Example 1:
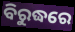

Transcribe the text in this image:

ବିରୁଦ୍ଧରେ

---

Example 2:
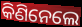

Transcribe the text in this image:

କିଣିନେଲେ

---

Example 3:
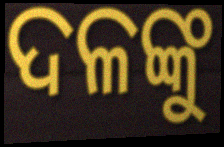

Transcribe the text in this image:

ଦଳଙ୍କୁ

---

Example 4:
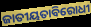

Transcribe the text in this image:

ଜାତୀୟତାବିରୋଧୀ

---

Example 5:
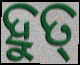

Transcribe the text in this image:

ହୁତ୍